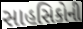
સાહસિકોની